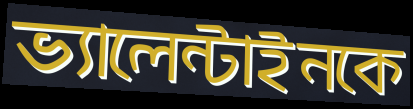
ভ্যালেন্টাইনকে